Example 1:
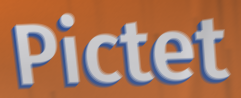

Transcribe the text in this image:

Pictet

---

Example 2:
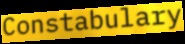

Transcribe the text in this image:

Constabulary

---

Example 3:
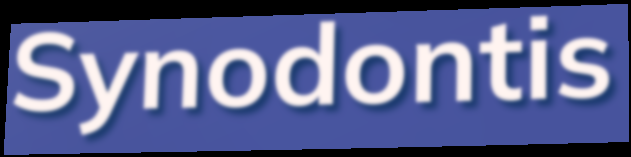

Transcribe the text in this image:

Synodontis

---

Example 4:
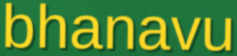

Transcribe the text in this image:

bhanavu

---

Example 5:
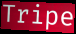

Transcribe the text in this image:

Tripe